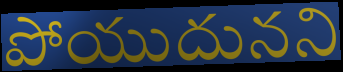
పోయుదునని